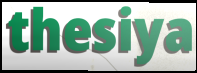
thesiya